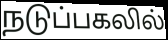
நடுப்பகலில்